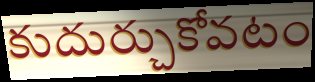
కుదుర్చుకోవటం